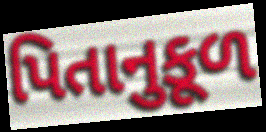
પિતાનુકૂળ